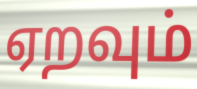
ஏறவும்